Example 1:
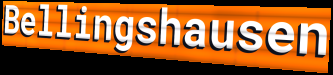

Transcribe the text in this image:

Bellingshausen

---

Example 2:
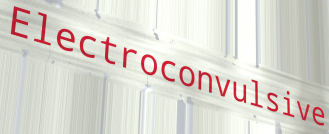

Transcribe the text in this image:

Electroconvulsive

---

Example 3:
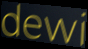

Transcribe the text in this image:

dewi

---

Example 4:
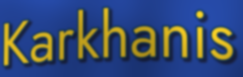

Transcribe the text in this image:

Karkhanis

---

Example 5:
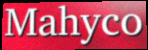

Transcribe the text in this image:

Mahyco